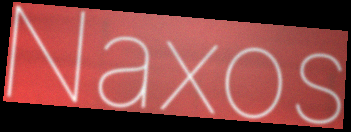
Naxos